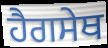
ਹੈਗਸੇਥ